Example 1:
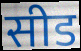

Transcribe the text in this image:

सीड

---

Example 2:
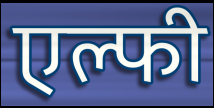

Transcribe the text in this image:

एल्फी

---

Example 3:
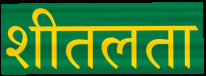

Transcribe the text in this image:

शीतलता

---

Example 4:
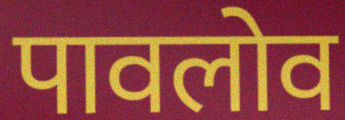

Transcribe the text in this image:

पावलोव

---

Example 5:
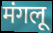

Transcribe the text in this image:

मंगलू